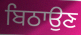
ਬਿਠਾਉਣ